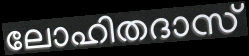
ലോഹിതദാസ്